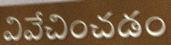
వివేచించడం